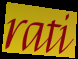
rati